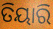
ତିୟାରି